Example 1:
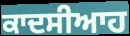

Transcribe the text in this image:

ਕਾਦਸੀਆਹ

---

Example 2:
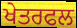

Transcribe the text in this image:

ਖੇਤਰਫਲ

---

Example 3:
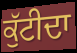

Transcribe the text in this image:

ਕੁੱਟੀਦਾ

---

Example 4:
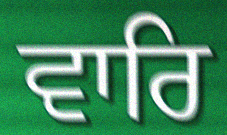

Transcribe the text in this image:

ਵਾਰਿ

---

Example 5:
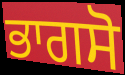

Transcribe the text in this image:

ਭਾਗਸੋ